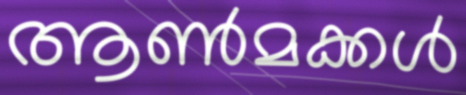
ആൺമക്കൾ